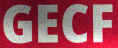
GECF